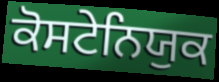
ਕੋਸਟੇਨਿਯੁਕ